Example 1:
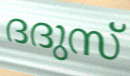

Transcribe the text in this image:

ദദുസ്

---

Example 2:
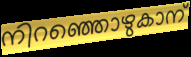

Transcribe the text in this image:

നിറഞ്ഞൊഴുകാന്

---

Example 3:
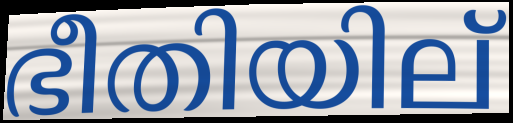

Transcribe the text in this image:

ഭീതിയില്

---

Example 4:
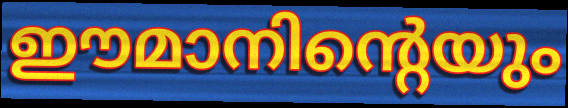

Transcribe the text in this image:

ഈമാനിന്റെയും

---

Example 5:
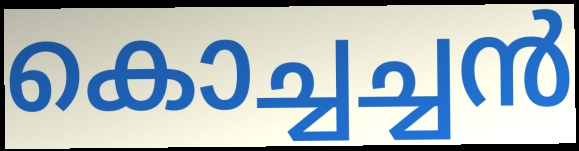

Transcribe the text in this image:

കൊച്ചച്ചൻ